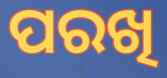
ପରଖି